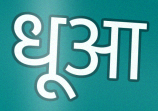
धूआ